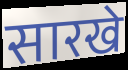
सारखे